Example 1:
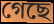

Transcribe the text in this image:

গেছে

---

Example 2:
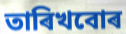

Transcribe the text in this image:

তাৰিখবোৰ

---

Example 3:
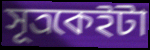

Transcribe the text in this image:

সূত্ৰকেইটা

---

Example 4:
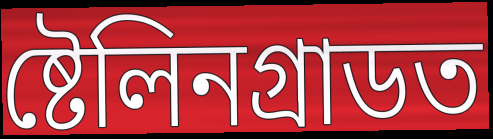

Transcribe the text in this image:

ষ্টেলিনগ্ৰাডত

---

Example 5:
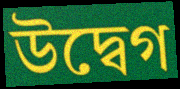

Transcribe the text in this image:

উদ্বেগ